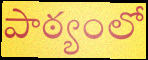
పాఠ్యంలో